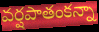
వర్షపాతంకన్నా